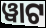
ୱାଟ